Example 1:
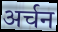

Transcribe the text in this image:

अर्चन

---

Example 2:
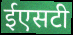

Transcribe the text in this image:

ईएसटी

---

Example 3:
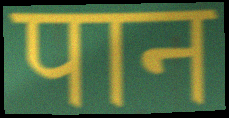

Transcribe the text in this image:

पान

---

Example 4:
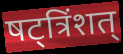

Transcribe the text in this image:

षट्त्रिंशत्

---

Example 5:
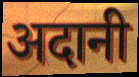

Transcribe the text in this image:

अदानी